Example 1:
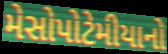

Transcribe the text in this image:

મેસોપોટેમીયાનો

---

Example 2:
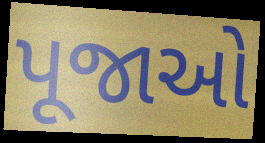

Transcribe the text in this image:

પૂજાઓ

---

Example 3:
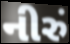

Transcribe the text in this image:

નીરું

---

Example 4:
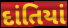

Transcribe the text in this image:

દાંતિયાં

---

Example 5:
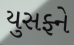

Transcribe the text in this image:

યુસફ્ને